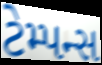
ટેમ્પન્સ